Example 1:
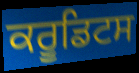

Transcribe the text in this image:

ਕਰੂਡਿਟਸ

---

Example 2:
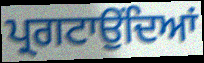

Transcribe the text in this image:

ਪ੍ਰਗਟਾਉਂਦਿਆਂ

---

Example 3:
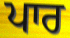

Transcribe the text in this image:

ਪਾਰ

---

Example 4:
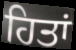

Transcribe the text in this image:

ਹਿਤਾਂ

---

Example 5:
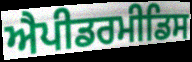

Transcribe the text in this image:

ਐਪੀਡਰਮੀਡਿਸ